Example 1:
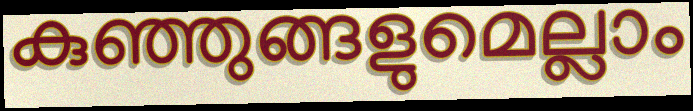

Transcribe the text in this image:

കുഞ്ഞുങ്ങളുമെല്ലാം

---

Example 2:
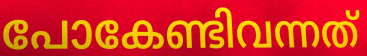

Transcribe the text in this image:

പോകേണ്ടിവന്നത്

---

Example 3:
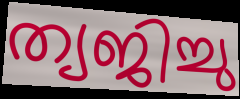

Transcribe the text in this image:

ത്യജിച്ചു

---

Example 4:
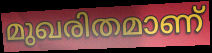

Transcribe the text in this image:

മുഖരിതമാണ്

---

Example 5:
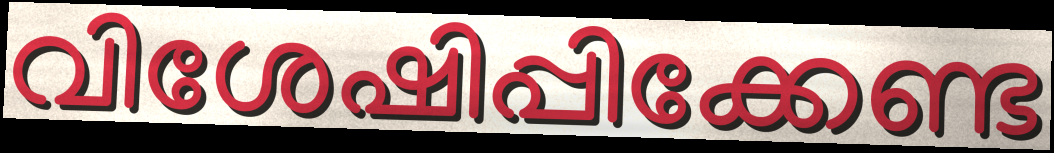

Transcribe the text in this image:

വിശേഷിപ്പിക്കേണ്ട